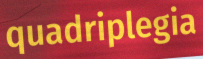
quadriplegia